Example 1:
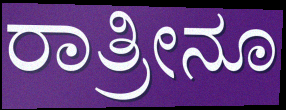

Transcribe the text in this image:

ರಾತ್ರೀನೂ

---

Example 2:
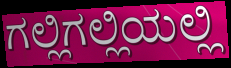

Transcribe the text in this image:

ಗಲ್ಲಿಗಲ್ಲಿಯಲ್ಲಿ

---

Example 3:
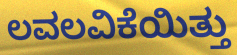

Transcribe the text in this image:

ಲವಲವಿಕೆಯಿತ್ತು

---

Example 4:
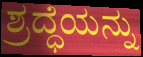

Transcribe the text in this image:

ಶ್ರದ್ಧೆಯನ್ನು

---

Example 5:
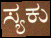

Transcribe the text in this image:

ಸ್ಯಕು